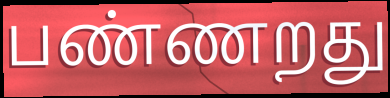
பண்ணறது